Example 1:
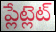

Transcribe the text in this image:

ప్లేట్లెట్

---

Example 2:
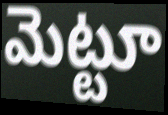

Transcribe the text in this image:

మెట్టూ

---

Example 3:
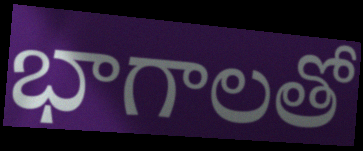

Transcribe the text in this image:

భాగాలతో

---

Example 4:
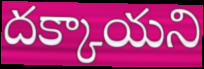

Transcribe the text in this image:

దక్కాయని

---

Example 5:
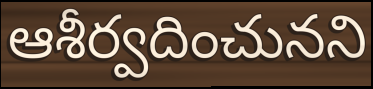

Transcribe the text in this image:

ఆశీర్వదించునని